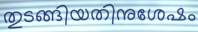
തുടങ്ങിയതിനുശേഷം